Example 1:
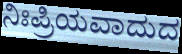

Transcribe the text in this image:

ನಿಃಪ್ರಿಯವಾದುದ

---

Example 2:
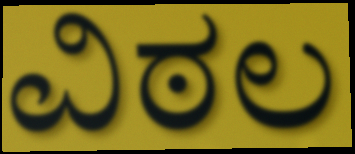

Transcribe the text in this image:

ವಿಠಲ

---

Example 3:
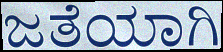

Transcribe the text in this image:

ಜತೆಯಾಗಿ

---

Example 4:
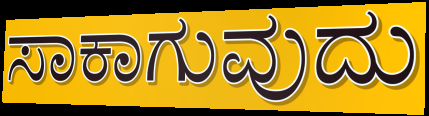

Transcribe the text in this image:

ಸಾಕಾಗುವುದು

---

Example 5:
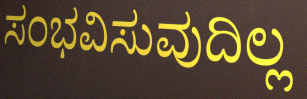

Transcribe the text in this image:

ಸಂಭವಿಸುವುದಿಲ್ಲ